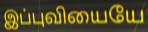
இப்புவியையே